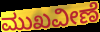
ಮುಖವೀಣೆ